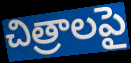
చిత్రాలపై